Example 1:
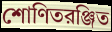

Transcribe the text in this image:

শোণিতরঞ্জিত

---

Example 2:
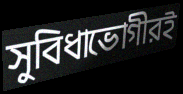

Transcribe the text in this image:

সুবিধাভোগীরই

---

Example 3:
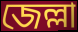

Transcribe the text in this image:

জেল্লা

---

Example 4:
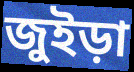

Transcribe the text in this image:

জুইড়া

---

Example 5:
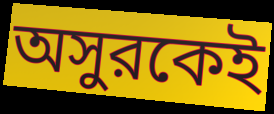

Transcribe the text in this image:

অসুরকেই